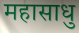
महासाधु